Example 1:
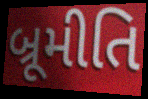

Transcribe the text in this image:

બ્રૂમીતિ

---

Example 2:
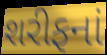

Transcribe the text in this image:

શરીફનાં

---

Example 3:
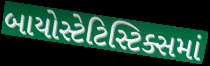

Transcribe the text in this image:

બાયોસ્ટેટિસ્ટિક્સમાં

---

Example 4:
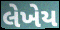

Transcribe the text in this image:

લેખેય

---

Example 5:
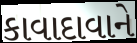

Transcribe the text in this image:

કાવાદાવાને